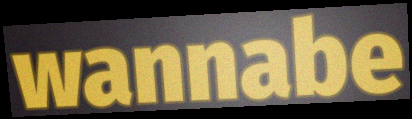
wannabe